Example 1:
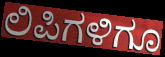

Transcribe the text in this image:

ಲಿಪಿಗಳಿಗೂ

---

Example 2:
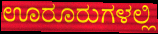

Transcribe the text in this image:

ಊರೂರುಗಳಲ್ಲಿ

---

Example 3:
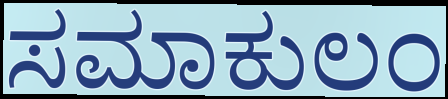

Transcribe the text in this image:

ಸಮಾಕುಲಂ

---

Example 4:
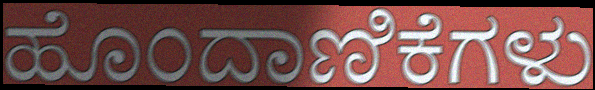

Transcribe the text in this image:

ಹೊಂದಾಣಿಕೆಗಳು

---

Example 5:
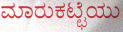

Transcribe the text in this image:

ಮಾರುಕಟ್ಟೆಯು